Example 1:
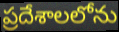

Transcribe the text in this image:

ప్రదేశాలలోను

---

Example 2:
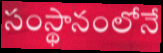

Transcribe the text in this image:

సంస్థానంలోనే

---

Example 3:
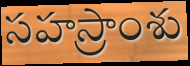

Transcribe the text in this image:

సహస్రాంశు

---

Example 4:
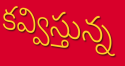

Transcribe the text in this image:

కవ్విస్తున్న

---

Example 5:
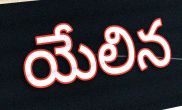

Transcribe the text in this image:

యేలిన